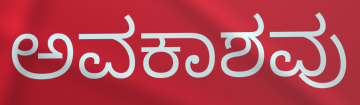
ಅವಕಾಶವು